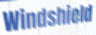
Windshield